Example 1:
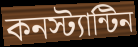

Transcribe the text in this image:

কনস্ট্যান্টিন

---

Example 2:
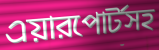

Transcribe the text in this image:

এয়ারপোর্টসহ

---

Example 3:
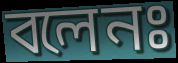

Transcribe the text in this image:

বলেনঃ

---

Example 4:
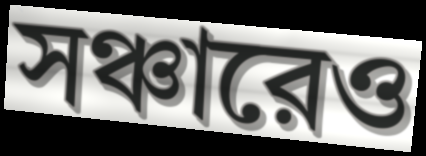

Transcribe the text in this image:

সঞ্চারেও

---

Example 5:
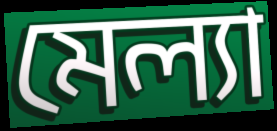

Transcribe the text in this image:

মেল্যা